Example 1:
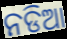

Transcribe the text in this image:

ନଡିଆ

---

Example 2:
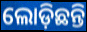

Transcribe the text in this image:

ଲୋଡ଼ିଛନ୍ତି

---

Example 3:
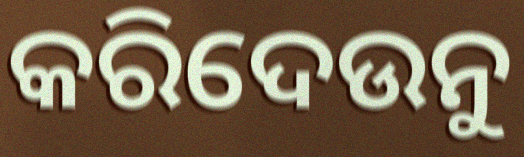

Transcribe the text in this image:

କରିଦେଉନୁ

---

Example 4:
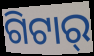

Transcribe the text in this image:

ଗିଟାର୍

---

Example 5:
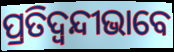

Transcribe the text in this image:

ପ୍ରତିଦ୍ୱନ୍ଦୀଭାବେ